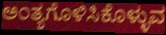
ಅಂತ್ಯಗೊಳಿಸಿಕೊಳ್ಳುವ